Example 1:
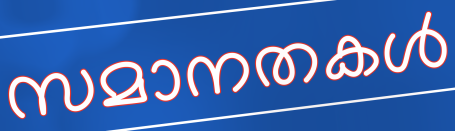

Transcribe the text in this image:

സമാനതകൾ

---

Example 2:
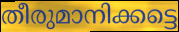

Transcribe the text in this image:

തീരുമാനിക്കട്ടെ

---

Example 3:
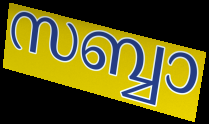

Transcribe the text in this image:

സബ്ബാ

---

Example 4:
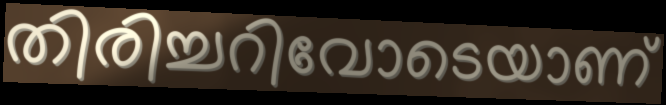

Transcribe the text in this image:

തിരിച്ചറിവോടെയാണ്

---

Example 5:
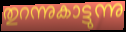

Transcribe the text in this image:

തുറന്നുകാട്ടുന്നു